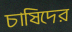
চাষিদের